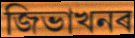
জিভাখনৰ